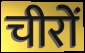
चीरों